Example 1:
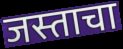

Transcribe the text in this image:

जस्ताचा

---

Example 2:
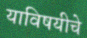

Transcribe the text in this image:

याविषयीचे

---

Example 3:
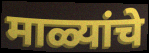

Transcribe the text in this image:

माळ्यांचे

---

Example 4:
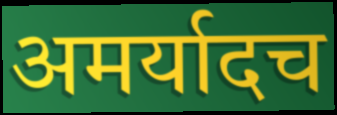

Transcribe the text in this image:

अमर्यादच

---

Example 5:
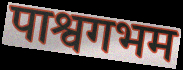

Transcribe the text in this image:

पाश्वगभम